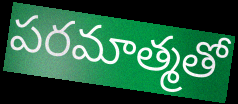
పరమాత్మతో